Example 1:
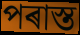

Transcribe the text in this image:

পৰাস্ত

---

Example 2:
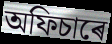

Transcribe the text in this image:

অফিচাৰে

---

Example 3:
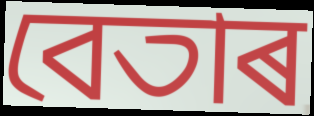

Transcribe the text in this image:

বেতাৰ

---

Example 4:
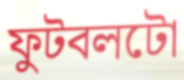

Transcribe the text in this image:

ফুটবলটো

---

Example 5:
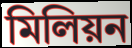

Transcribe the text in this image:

মিলিয়ন